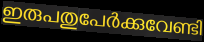
ഇരുപതുപേർക്കുവേണ്ടി